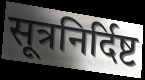
सूत्रनिर्दिष्ट